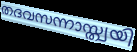
തദവസന്നാസ്ത്വയി